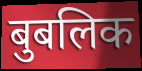
बुबलिक